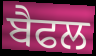
ਬੈਫਲ